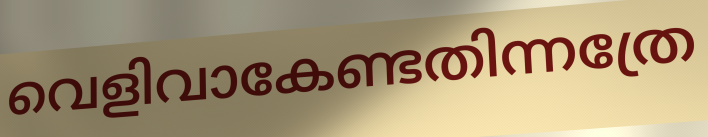
വെളിവാകേണ്ടതിന്നത്രേ